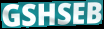
GSHSEB